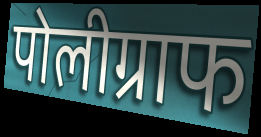
पोलीग्राफ